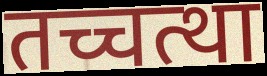
तच्चत्था